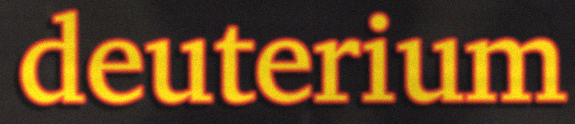
deuterium